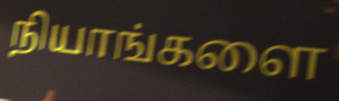
நியாங்களை